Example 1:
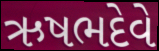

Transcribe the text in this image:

ઋષભદેવે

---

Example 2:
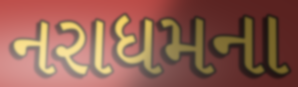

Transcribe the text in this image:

નરાધમના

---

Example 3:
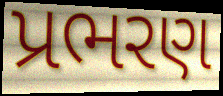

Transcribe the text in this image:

પ્રભરણ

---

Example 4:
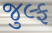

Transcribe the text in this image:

જુલ્ફ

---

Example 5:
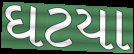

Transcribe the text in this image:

ઘટયા